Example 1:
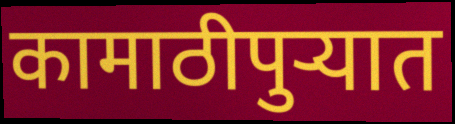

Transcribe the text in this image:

कामाठीपुर्‍यात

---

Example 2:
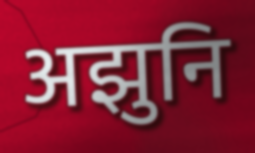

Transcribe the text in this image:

अझुनि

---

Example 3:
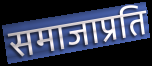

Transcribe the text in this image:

समाजाप्रति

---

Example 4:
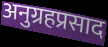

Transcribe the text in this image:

अनुग्रहप्रसाद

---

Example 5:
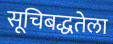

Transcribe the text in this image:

सूचिबद्धतेला